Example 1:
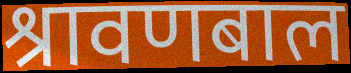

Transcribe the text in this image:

श्रावणबाल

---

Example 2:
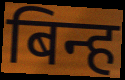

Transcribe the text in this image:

बिन्ह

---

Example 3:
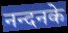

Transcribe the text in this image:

नन्दनके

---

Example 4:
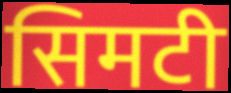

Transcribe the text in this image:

सिमटी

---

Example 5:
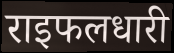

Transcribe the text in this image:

राइफलधारी